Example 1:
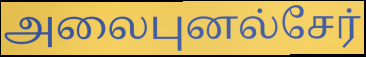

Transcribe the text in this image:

அலைபுனல்சேர்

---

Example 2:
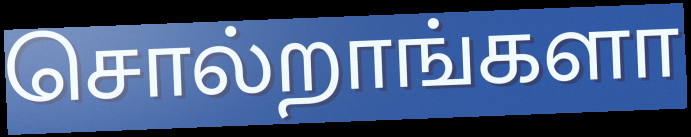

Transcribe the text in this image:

சொல்றாங்களா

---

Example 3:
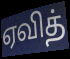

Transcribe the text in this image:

ஏவித்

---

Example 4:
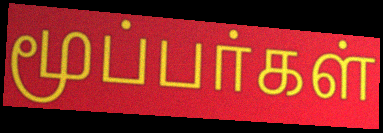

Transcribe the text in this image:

மூப்பர்கள்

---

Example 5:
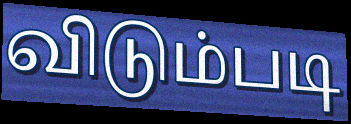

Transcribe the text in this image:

விடும்படி